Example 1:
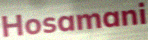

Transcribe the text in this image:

Hosamani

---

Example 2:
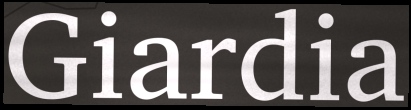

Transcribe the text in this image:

Giardia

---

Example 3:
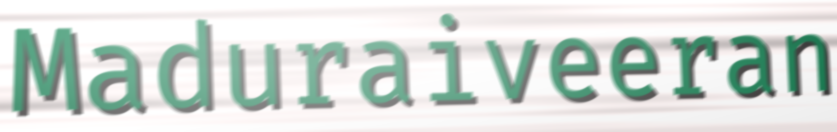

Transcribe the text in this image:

Maduraiveeran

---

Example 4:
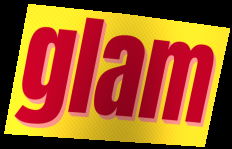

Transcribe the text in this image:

glam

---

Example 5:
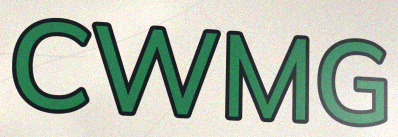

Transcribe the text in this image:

CWMG